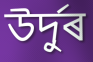
উৰ্দুৰ